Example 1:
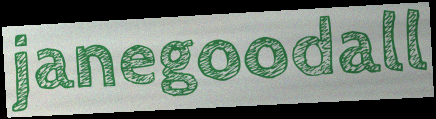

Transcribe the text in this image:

janegoodall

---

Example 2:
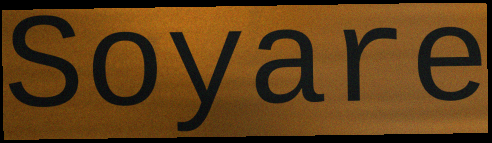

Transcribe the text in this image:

Soyare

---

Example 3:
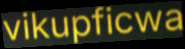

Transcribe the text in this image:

vikupficwa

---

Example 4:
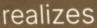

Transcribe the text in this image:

realizes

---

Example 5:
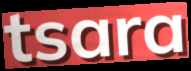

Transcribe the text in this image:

tsara